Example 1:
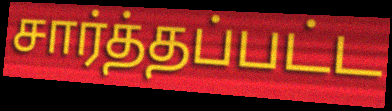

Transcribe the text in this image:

சார்த்தப்பட்ட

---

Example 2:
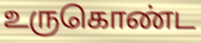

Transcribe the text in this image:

உருகொண்ட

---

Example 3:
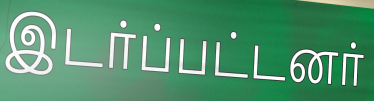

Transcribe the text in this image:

இடர்ப்பட்டனர்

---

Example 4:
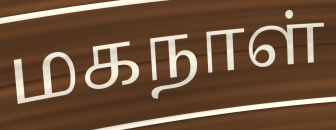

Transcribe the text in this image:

மகநாள்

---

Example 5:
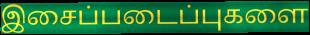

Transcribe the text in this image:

இசைப்படைப்புகளை